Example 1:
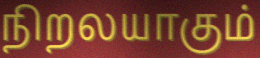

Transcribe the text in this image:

நிறலயாகும்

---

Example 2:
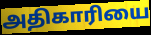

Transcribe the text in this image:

அதிகாரியை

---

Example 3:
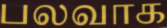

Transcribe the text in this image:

பலவாக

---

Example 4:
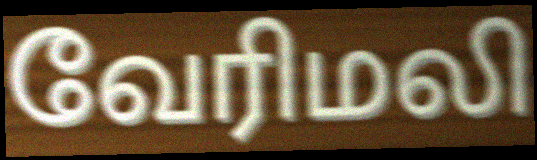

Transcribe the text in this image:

வேரிமலி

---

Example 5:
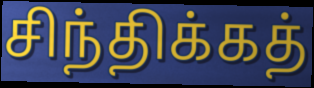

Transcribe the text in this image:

சிந்திக்கத்